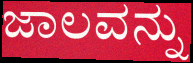
ಜಾಲವನ್ನು